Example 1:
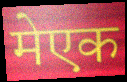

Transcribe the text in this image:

मेएक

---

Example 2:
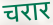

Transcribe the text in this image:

चरार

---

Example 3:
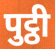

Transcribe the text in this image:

पुट्ठी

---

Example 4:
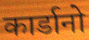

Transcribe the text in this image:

कार्डानो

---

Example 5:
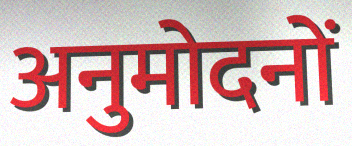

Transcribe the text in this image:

अनुमोदनों